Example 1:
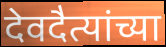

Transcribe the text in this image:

देवदैत्यांच्या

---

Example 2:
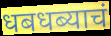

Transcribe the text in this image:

धबधब्याचं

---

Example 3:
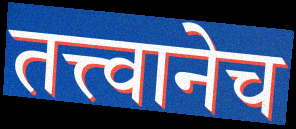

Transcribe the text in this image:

तत्त्वानेच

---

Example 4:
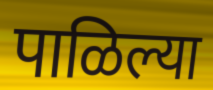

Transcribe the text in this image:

पाळिल्या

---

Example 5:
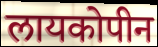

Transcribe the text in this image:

लायकोपीन